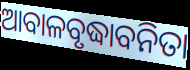
ଆବାଳବୃଦ୍ଧାବନିତା